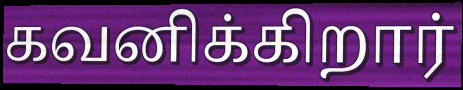
கவனிக்கிறார்